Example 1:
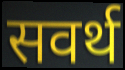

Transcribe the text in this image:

सवर्थ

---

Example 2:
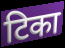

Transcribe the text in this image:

टिका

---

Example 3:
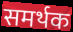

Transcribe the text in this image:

समर्थक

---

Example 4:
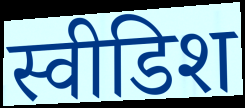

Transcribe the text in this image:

स्वीडिश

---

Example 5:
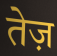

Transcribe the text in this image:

तेज़